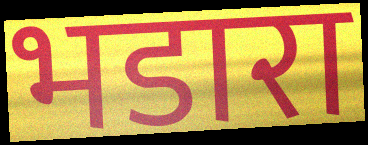
भडारा